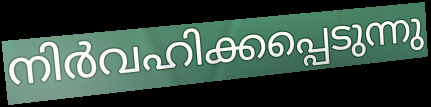
നിർവഹിക്കപ്പെടുന്നു